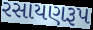
રસાયણરૂપ